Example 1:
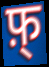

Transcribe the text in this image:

फ़्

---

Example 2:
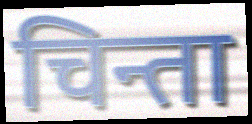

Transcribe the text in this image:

चिन्ता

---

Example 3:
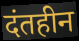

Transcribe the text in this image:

दंतहीन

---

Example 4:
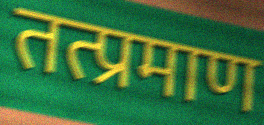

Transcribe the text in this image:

तत्प्रमाण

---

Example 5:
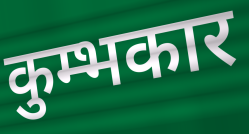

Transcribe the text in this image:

कुम्भकार